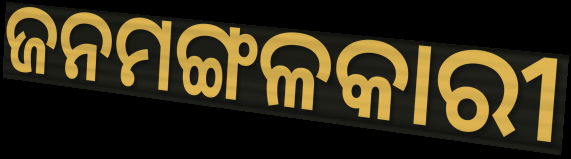
ଜନମଙ୍ଗଳକାରୀ